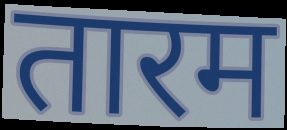
तारम